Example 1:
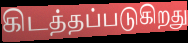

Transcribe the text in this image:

கிடத்தப்படுகிறது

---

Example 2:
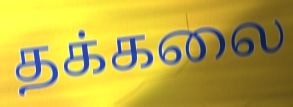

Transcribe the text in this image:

தக்கலை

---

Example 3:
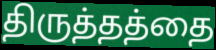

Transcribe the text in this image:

திருத்தத்தை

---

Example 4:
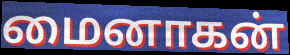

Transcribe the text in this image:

மைனாகன்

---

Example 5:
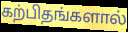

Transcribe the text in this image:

கற்பிதங்களால்